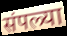
संपल्या